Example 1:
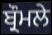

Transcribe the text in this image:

ਬ੍ਰੌਮਲੇ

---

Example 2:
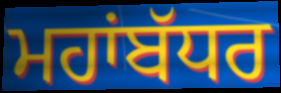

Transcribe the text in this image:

ਮਹਾਂਬੱਧਰ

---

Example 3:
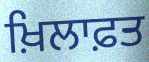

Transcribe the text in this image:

ਖ਼ਿਲਾਫ਼ਤ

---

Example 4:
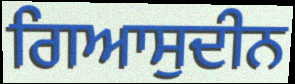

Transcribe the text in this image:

ਗਿਆਸੁਦੀਨ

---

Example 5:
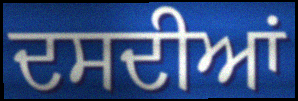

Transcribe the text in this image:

ਦਸਦੀਆਂ